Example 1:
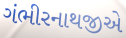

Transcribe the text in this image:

ગંભીરનાથજીએ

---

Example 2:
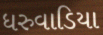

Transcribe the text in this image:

ધરુવાડિયા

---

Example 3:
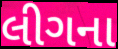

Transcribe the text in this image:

લીગના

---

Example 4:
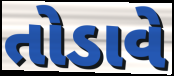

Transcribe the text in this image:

તોડાવે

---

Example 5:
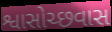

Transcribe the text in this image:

શ્વાસોચ્છવાસ